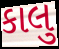
કાલુ